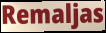
Remaljas